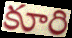
కూరి